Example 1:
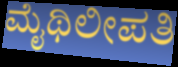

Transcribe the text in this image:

ಮೈಥಿಲೀಪತಿ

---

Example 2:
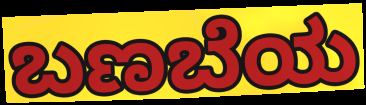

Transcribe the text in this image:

ಬಣಬೆಯ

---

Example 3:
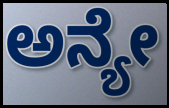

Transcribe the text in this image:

ಅನ್ಯೇ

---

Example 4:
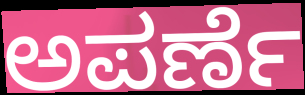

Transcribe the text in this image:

ಅಪರ್ಣೆ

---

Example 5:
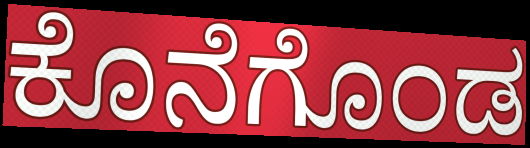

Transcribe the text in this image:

ಕೊನೆಗೊಂಡ